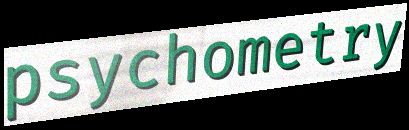
psychometry